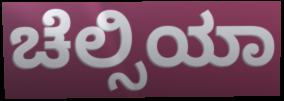
ಚೆಲ್ಸಿಯಾ